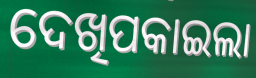
ଦେଖିପକାଇଲା